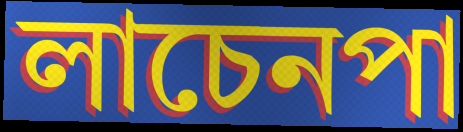
লাচেনপা